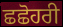
ਛਛੋਹਰੀ